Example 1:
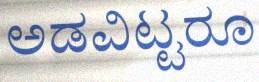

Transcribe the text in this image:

ಅಡವಿಟ್ಟರೂ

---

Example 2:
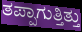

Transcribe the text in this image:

ತಪ್ಪಾಗುತ್ತಿತ್ತು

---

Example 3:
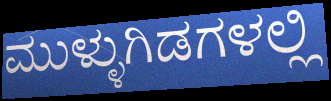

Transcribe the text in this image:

ಮುಳ್ಳುಗಿಡಗಳಲ್ಲಿ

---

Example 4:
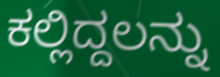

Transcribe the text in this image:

ಕಲ್ಲಿದ್ದಲನ್ನು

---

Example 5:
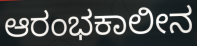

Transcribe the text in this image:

ಆರಂಭಕಾಲೀನ